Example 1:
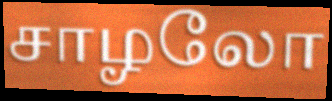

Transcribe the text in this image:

சாழலோ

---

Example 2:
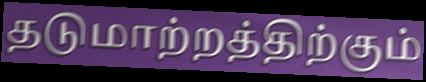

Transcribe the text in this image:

தடுமாற்றத்திற்கும்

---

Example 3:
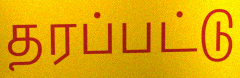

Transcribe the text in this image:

தரப்பட்டு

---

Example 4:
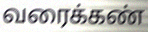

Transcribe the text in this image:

வரைக்கண்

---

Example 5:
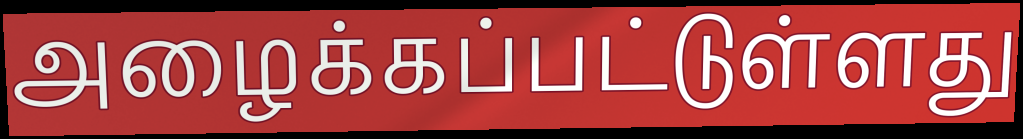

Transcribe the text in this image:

அழைக்கப்பட்டுள்ளது